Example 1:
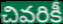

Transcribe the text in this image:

చివరికీ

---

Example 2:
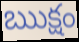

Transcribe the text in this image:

ఋక్షం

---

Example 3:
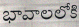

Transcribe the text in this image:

భావాలలోకి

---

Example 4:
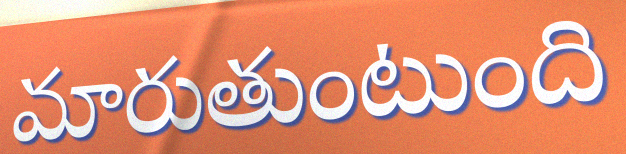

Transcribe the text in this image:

మారుతుంటుంది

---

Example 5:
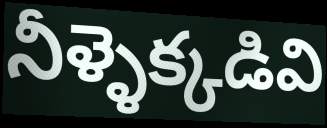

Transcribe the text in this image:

నీళ్ళెక్కడివి